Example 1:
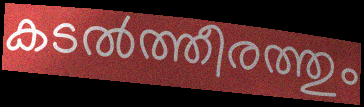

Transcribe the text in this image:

കടൽത്തീരത്തും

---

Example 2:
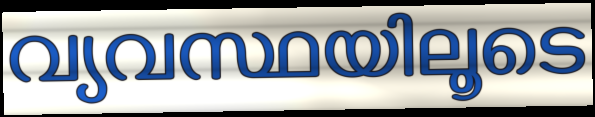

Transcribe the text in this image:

വ്യവസ്ഥയിലൂടെ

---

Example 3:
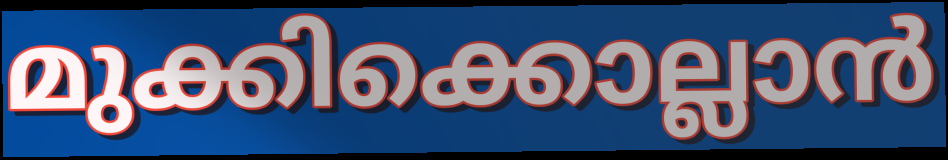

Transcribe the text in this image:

മുക്കിക്കൊല്ലാൻ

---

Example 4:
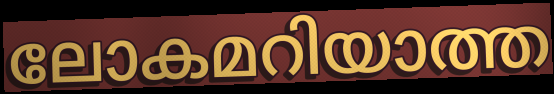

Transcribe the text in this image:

ലോകമറിയാത്ത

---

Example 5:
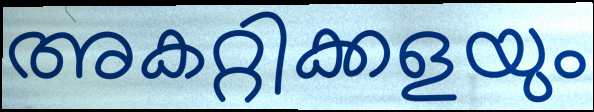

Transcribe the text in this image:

അകറ്റിക്കളയും